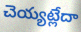
చెయ్యట్లేదా